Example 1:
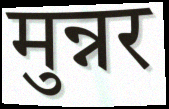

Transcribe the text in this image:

मुन्नर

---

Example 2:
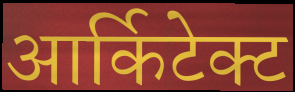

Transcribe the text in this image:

आर्किटेक्ट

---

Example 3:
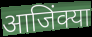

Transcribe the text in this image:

आजिंक्या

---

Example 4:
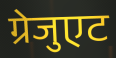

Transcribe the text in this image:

ग्रेजुएट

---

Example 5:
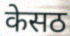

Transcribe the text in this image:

केसठ